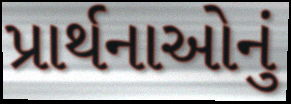
પ્રાર્થનાઓનું